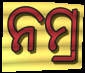
ନମ୍ର